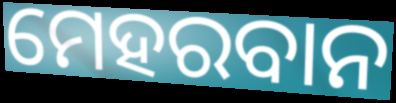
ମେହରବାନ